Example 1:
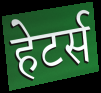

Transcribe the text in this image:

हेटर्स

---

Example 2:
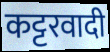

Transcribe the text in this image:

कट्टरवादी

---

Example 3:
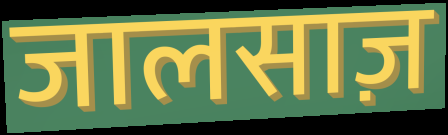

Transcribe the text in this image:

जालसाज़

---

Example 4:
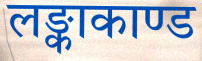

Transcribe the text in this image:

लङ्काकाण्ड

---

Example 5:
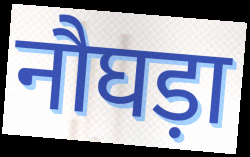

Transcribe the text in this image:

नौघड़ा